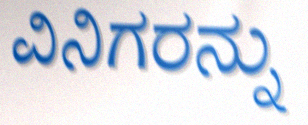
ವಿನಿಗರನ್ನು